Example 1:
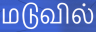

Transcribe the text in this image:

மடுவில்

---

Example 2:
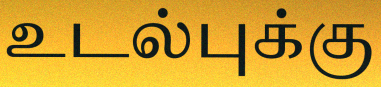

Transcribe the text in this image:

உடல்புக்கு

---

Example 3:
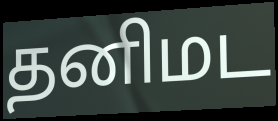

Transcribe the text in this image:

தனிமட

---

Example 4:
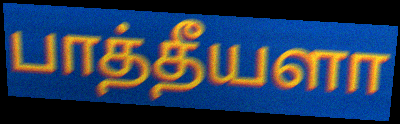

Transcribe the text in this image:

பாத்தீயளா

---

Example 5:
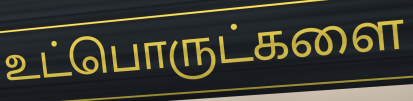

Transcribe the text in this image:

உட்பொருட்களை